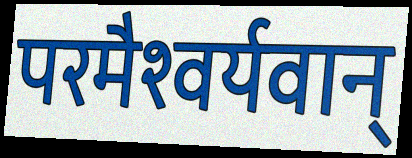
परमैश्वर्यवान्